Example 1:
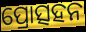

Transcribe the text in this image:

ପ୍ରୋତ୍ସହନ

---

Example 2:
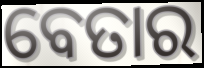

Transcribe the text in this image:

ବେତାର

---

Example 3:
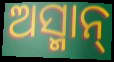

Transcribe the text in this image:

ଅସ୍ମାନ୍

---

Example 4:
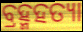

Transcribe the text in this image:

ବ୍ରହ୍ମହତ୍ୟା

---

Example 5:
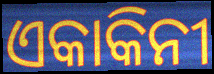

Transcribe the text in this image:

ଏକାକିନୀ